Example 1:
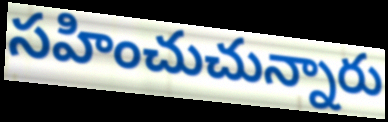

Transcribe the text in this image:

సహించుచున్నారు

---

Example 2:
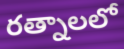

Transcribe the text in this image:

రత్నాలలో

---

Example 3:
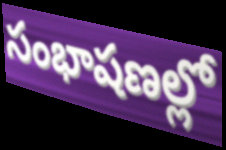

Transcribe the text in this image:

సంభాషణల్లో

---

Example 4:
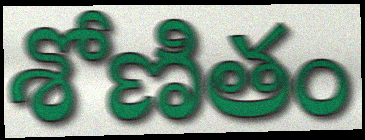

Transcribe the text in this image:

శోణితం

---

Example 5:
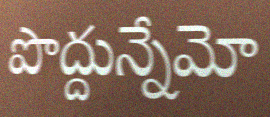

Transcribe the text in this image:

పొద్దున్నేమో